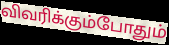
விவரிக்கும்போதும்